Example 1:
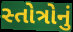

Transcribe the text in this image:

સ્તોત્રોનું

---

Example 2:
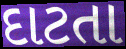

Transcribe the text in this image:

દાટતા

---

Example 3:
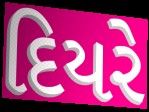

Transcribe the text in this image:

દિયરે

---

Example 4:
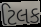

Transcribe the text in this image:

ટિલક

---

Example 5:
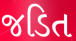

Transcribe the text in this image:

જડિત